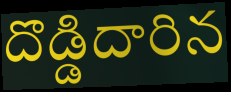
దొడ్డిదారిన